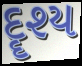
દૄશ્ય